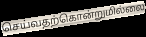
செய்வதற்கொன்றுமில்லை